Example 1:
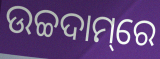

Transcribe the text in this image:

ଉଚ୍ଚଦାମ୍‌ରେ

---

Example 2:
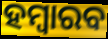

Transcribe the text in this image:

ହମ୍ବାରବ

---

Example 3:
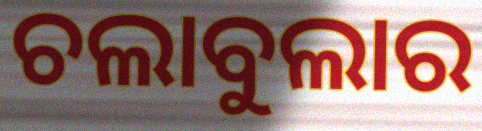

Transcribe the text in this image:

ଚଲାବୁଲାର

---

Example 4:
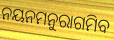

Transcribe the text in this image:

ନୟନମନୁରାଗମିବ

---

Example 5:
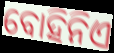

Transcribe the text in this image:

ବୋହିନିଏ